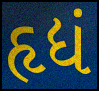
હૃદ્યં